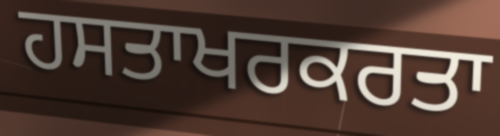
ਹਸਤਾਖਰਕਰਤਾ